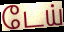
டேய்